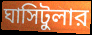
ঘাসিটুলার